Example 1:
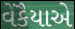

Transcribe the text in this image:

વેંકૈયાએ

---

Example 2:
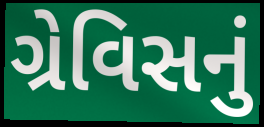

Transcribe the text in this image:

ગ્રેવિસનું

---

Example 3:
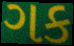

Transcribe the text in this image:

ગક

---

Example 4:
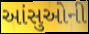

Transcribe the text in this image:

આંસુઓની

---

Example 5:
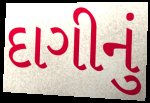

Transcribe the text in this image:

દાગીનું